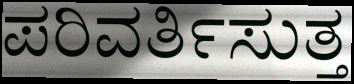
ಪರಿವರ್ತಿಸುತ್ತ